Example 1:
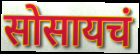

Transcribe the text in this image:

सोसायचं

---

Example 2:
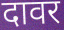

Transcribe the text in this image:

दावर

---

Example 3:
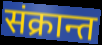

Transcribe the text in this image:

संक्रान्त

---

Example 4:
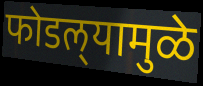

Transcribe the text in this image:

फोडल्यामुळे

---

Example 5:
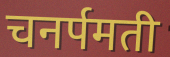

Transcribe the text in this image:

चनर्पमती